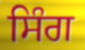
ਸਿੰਗ